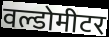
वल्डोमीटर